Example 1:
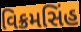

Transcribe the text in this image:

વિક્રમસિંહ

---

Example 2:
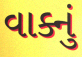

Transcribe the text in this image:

વાક્નું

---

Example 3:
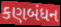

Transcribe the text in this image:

કણબંધન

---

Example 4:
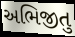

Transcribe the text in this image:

અભિજીતુ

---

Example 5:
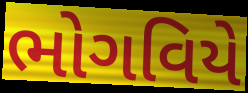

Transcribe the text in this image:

ભોગવિયે